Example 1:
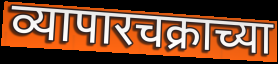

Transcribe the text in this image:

व्यापारचक्राच्या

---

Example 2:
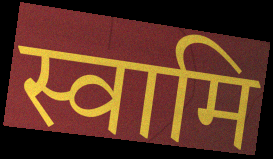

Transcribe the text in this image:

स्वामि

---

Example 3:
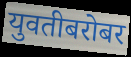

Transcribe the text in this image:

युवतीबरोबर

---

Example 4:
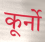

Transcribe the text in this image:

कूर्नो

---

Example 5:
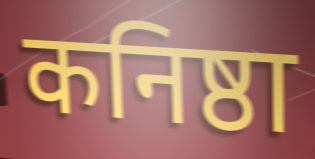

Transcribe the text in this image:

कनिष्ठा